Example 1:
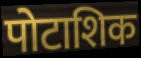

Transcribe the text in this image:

पोटाशिक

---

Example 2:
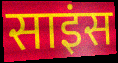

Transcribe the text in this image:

साइंस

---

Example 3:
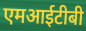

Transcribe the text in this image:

एमआईटीबी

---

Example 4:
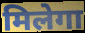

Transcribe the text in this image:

मिलेगा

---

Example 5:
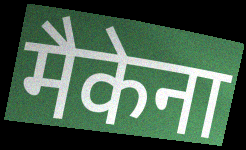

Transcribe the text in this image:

मैकेना